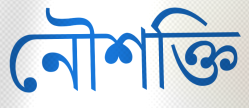
নৌশক্তি